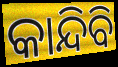
କାନ୍ଦିବି